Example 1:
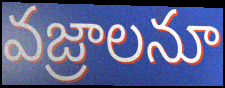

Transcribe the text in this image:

వజ్రాలనూ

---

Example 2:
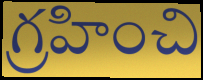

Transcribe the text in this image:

గ్రహించి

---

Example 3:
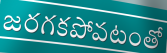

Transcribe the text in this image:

జరగకపోవటంతో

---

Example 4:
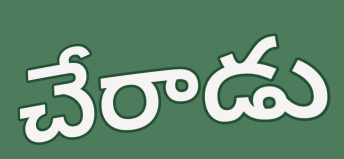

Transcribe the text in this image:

చేరాడు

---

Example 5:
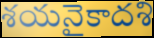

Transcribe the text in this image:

శయనైకాదశి